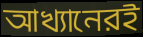
আখ্যানেরই